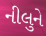
નીલુને